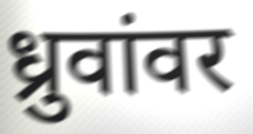
ध्रुवांवर